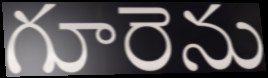
గూరెను